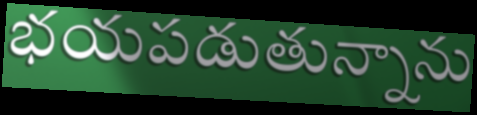
భయపడుతున్నాను